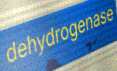
dehydrogenase